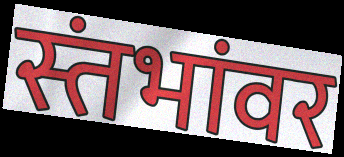
स्तंभांवर